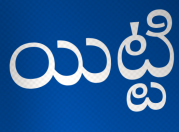
యిట్టి